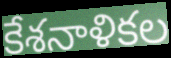
కేశనాళికల